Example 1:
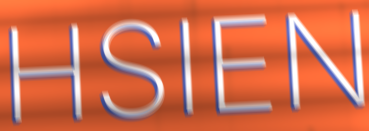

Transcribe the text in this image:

HSIEN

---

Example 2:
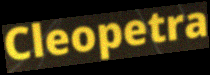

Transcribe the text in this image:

Cleopetra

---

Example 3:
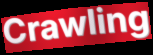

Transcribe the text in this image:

Crawling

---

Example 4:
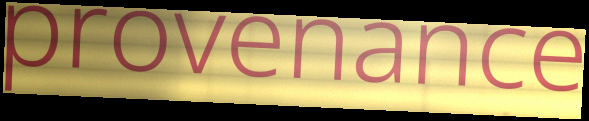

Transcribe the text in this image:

provenance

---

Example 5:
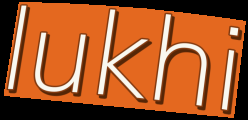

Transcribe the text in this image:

lukhi